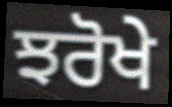
ਝਰੋਖੇ